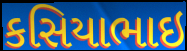
કસિયાભાઇ